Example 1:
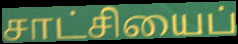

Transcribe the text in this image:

சாட்சியைப்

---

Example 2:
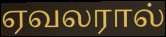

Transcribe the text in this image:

ஏவலரால்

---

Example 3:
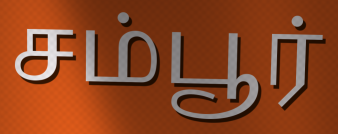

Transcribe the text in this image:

சம்பூர்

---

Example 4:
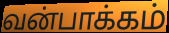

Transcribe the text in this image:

வன்பாக்கம்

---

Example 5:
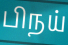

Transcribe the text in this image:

பிநய்